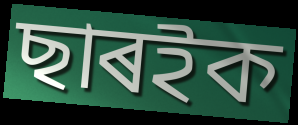
ছাৰইক